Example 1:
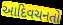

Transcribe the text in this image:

આદિવચનતો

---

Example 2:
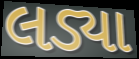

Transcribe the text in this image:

લડ્યા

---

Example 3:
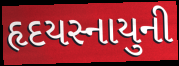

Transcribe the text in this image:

હૃદયસ્નાયુની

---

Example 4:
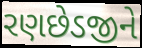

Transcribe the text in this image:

રણછેડજીને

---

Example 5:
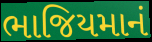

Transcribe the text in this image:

ભાજિયમાનં